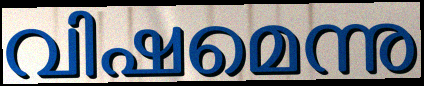
വിഷമെന്നു